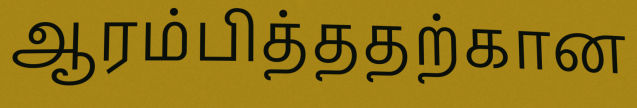
ஆரம்பித்ததற்கான